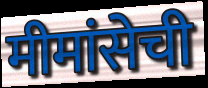
मीमांसेची